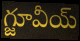
గ్జూవీయ్